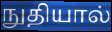
நுதியால்